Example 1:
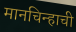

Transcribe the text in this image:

मानचिन्हाची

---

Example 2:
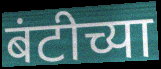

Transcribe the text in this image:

बंटीच्या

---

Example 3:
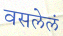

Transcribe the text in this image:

वसलेलं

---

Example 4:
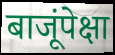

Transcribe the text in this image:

बाजूंपेक्षा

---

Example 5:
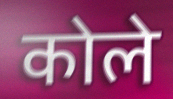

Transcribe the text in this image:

कोले